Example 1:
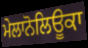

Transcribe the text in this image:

ਮੇਲਾਨੋਲਿਊਕਾ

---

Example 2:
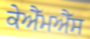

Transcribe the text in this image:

ਕੇਐੱਮਐੱਸ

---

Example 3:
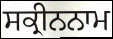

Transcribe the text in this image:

ਸਕ੍ਰੀਨਨਾਮ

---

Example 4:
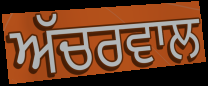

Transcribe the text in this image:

ਅੱਚਰਵਾਲ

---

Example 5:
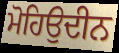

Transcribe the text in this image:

ਮੋਹਿਉਦੀਨ